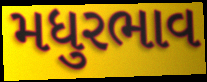
મધુરભાવ